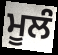
ਮੂਲੰ